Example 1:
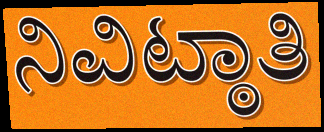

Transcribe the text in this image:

ನಿವಿಟ್ಠಾತಿ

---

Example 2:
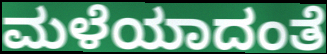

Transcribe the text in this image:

ಮಳೆಯಾದಂತೆ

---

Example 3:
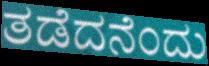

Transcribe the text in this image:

ತಡೆದನೆಂದು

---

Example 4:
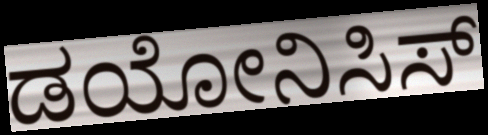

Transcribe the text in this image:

ಡಯೋನಿಸಿಸ್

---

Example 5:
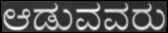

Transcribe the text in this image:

ಆಡುವವರು